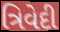
ત્રિવેદી